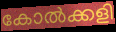
കോൽക്കളി